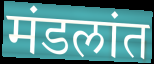
मंडलांत